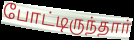
போட்டிருந்தார்